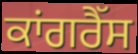
ਕਾਂਗਰੈੱਸ